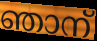
ഞാന്